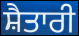
ਸ਼ੈਤਾਰੀ